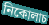
নিকোলাচ